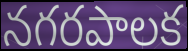
నగరపాలక